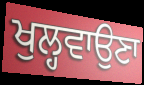
ਖੁਲ੍ਹਵਾਉਣਾ